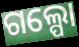
ଗଲ୍ପୋ